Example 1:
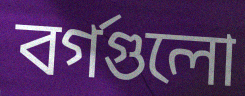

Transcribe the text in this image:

বর্গগুলো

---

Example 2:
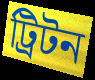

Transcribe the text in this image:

ট্রিটন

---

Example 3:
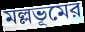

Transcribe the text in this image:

মল্লভূমের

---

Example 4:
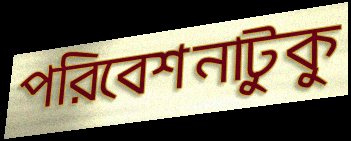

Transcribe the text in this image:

পরিবেশনাটুকু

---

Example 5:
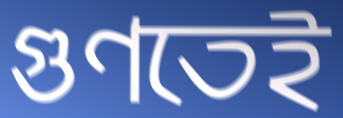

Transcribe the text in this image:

গুণতেই